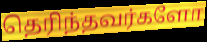
தெரிந்தவர்களோ